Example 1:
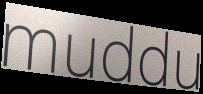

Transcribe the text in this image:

muddu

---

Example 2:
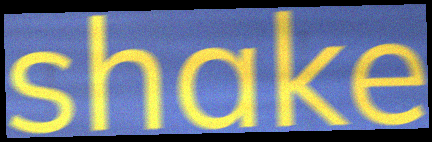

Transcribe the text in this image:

shake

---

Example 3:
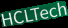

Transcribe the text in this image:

HCLTech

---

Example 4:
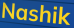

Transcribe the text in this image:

Nashik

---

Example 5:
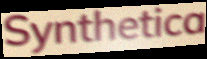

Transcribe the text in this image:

Synthetica